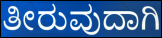
ತೀರುವುದಾಗಿ